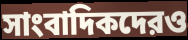
সাংবাদিকদেরও